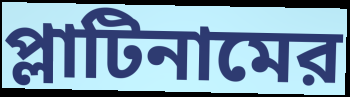
প্লাটিনামের